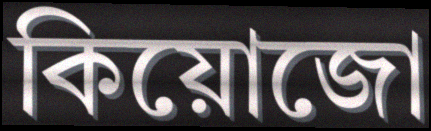
কিয়োজো